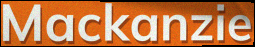
Mackanzie